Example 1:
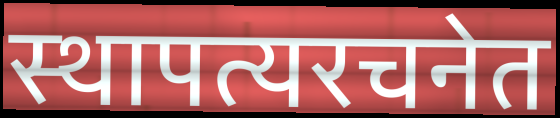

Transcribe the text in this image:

स्थापत्यरचनेत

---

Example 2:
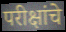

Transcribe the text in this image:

परीक्षांचे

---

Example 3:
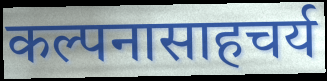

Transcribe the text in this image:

कल्पनासाहचर्य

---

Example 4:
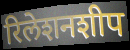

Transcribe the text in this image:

रिलेशनशीप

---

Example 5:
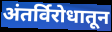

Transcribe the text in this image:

अंतर्विरोधातून